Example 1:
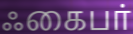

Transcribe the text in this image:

ஃகைபர்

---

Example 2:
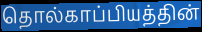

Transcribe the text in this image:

தொல்காப்பியத்தின்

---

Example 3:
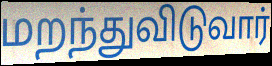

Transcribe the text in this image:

மறந்துவிடுவார்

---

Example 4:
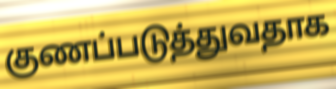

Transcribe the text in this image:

குணப்படுத்துவதாக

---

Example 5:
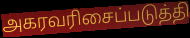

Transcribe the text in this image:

அகரவரிசைப்படுத்தி